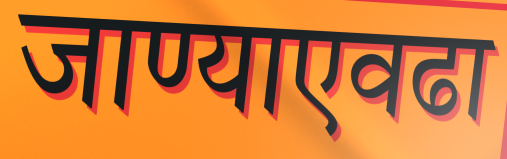
जाण्याएवढा